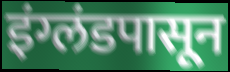
इंग्लंडपासून